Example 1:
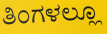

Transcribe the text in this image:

ತಿಂಗಳಲ್ಲೂ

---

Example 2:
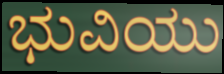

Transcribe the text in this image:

ಭುವಿಯು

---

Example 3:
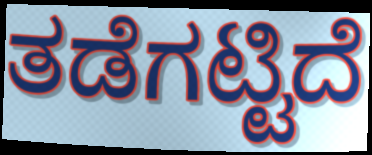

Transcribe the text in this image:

ತಡೆಗಟ್ಟಿದೆ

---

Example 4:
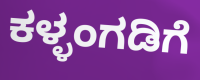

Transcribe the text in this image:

ಕಳ್ಳಂಗಡಿಗೆ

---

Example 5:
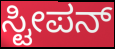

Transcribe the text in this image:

ಸ್ಟೀಪನ್